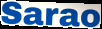
Sarao